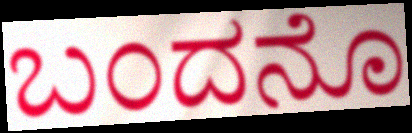
ಬಂದನೊ